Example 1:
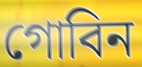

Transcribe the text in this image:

গোবিন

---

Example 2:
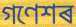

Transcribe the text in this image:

গণেশৰ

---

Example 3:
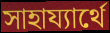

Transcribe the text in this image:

সাহায্যাৰ্থে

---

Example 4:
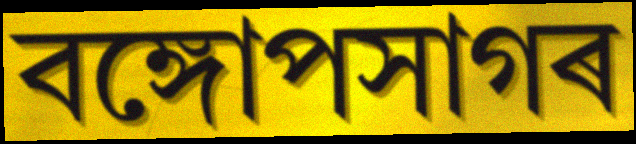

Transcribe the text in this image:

বঙ্গোপসাগৰ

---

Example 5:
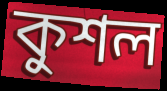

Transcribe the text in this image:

কুশল